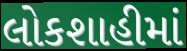
લોકશાહીમાં